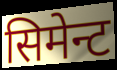
सिमेन्ट